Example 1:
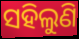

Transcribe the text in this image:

ସହିଲୁଣି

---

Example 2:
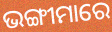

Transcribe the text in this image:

ଭଙ୍ଗୀମାରେ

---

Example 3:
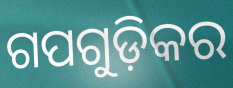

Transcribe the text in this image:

ଗପଗୁଡ଼ିକର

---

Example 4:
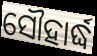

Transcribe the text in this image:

ସୌହାର୍ଦ୍ଧ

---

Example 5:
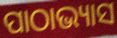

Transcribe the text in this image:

ପାଠାଭ୍ୟାସ